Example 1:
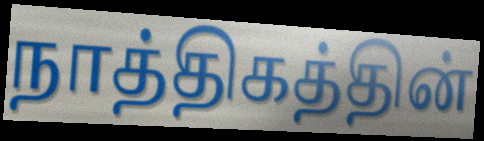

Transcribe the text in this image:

நாத்திகத்தின்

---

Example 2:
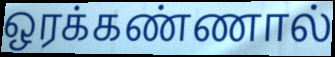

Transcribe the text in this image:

ஒரக்கண்ணால்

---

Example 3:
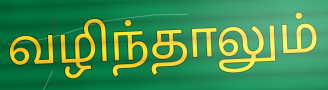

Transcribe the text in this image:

வழிந்தாலும்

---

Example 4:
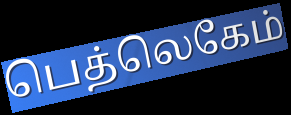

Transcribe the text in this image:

பெத்லெகேம்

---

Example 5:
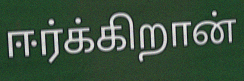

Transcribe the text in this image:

ஈர்க்கிறான்